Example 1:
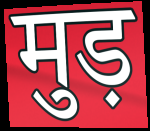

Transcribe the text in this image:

मुड़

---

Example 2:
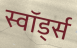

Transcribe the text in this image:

स्वॉर्ड्स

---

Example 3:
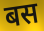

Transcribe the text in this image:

बस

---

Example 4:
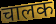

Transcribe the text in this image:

चालक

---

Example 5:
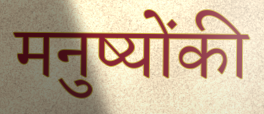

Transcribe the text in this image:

मनुष्योंकी